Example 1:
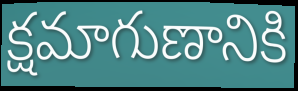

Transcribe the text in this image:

క్షమాగుణానికి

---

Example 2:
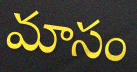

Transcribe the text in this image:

మాసం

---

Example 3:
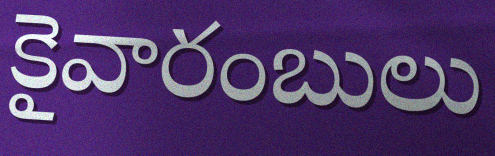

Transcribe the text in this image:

కైవారంబులు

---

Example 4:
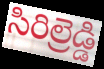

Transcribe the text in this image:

సిరిల్రెడ్డి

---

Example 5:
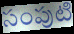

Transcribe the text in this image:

సంపుటి